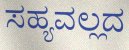
ಸಹ್ಯವಲ್ಲದ